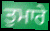
ਤੁਮਾਰੇ